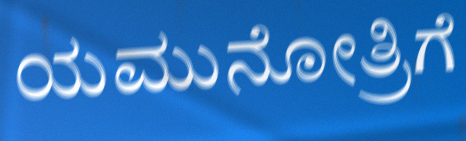
ಯಮುನೋತ್ರಿಗೆ